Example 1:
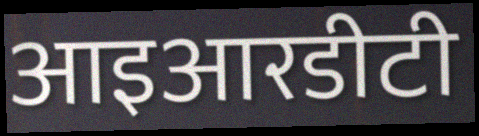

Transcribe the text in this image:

आइआरडीटी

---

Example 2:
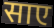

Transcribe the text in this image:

साए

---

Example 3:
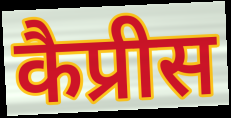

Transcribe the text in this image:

कैप्रीस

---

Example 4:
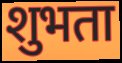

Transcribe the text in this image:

शुभता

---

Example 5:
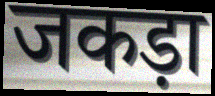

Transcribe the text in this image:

जकड़ा